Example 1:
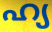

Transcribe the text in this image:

ഹ്യ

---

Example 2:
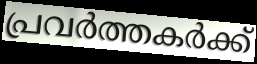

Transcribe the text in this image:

പ്രവർത്തകർക്ക്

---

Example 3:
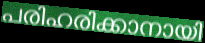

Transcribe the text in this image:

പരിഹരിക്കാനായി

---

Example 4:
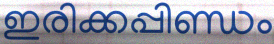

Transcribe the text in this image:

ഇരിക്കപ്പിണ്ഡം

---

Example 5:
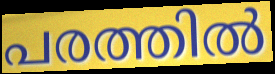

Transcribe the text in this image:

പരത്തിൽ